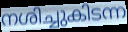
നശിച്ചുകിടന്ന